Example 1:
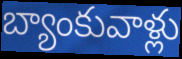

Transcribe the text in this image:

బ్యాంకువాళ్లు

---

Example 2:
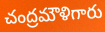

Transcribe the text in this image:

చంద్రమౌళిగారు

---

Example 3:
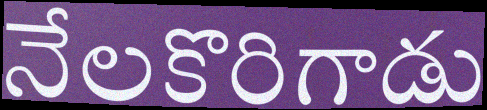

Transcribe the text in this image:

నేలకొరిగాడు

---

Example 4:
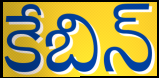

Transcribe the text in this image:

కేబిన్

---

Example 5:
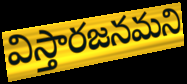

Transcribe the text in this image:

విస్తారజనమని